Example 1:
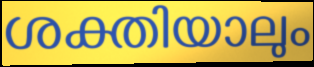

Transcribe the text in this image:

ശക്തിയാലും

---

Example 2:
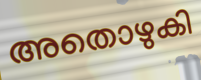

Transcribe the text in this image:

അതൊഴുകി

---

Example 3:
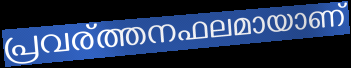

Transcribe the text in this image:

പ്രവര്ത്തനഫലമായാണ്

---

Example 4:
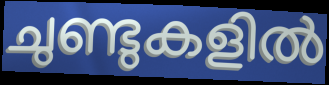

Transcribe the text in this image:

ചുണ്ടുകളിൽ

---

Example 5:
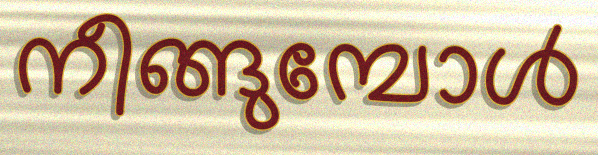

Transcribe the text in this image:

നീങ്ങുമ്പോൾ